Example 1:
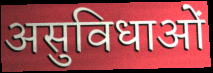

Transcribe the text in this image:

असुविधाओं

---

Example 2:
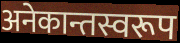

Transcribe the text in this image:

अनेकान्तस्वरूप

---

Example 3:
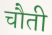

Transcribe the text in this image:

चौती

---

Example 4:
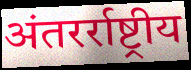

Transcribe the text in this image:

अंतरर्राष्ट्रीय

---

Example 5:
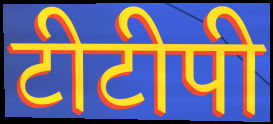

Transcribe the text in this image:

टीटीपी